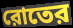
রোতের